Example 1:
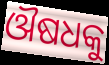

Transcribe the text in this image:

ଔଷଧକୁ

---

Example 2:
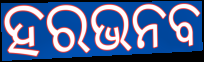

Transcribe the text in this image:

ହରଭନବ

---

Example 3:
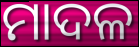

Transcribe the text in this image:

ମାଦଳ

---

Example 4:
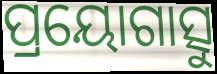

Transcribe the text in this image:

ପ୍ରୟୋଗାତ୍ସୁ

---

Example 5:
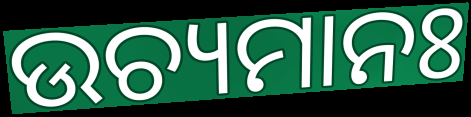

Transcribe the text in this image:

ଉଚ୍ୟମାନଃ